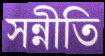
সন্নীতি